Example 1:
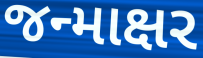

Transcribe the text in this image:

જન્માક્ષર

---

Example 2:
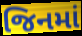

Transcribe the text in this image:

જિનમાં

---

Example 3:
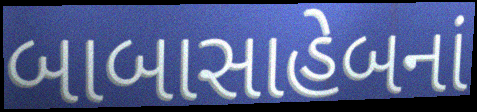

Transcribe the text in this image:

બાબાસાહેબનાં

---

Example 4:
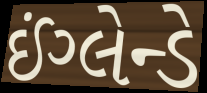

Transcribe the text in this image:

ઈંગ્લેન્ડે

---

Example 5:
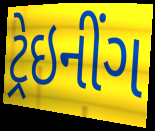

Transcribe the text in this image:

ટ્રેઇનીંગ